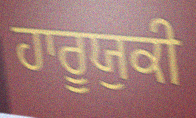
ਹਾਰੂਯੁਕੀ